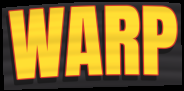
WARP